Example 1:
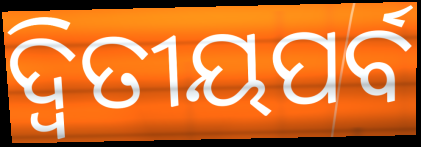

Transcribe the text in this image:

ଦ୍ୱିତୀୟପର୍ବ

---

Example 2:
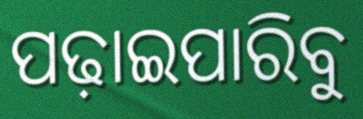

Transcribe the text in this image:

ପଢ଼ାଇପାରିବୁ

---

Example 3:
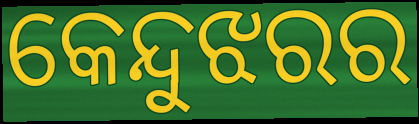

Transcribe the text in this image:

କେନ୍ଦୁଝରର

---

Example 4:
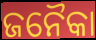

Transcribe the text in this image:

ଜନୈକା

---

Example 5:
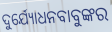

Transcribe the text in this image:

ଦୁର୍ଯ୍ୟୋଧନବାବୁଙ୍କର